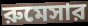
রুমেসার